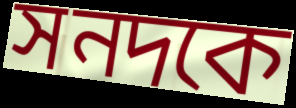
সনদকে